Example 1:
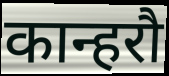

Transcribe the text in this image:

कान्हरौ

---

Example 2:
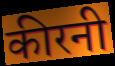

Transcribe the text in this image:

कीरनी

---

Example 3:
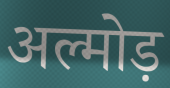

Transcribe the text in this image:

अल्मोड़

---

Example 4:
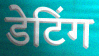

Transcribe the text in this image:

डेटिंग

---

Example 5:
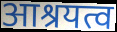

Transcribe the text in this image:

आश्रयत्व